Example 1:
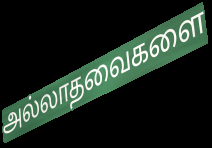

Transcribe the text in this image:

அல்லாதவைகளை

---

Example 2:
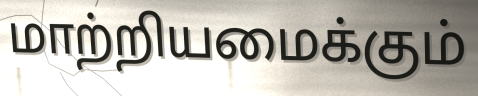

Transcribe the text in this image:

மாற்றியமைக்கும்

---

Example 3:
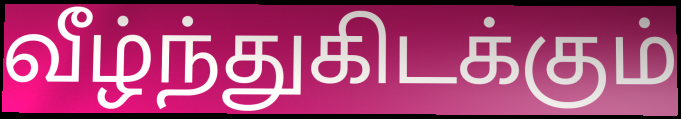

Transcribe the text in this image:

வீழ்ந்துகிடக்கும்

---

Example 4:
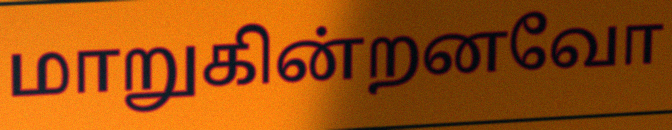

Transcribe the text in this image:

மாறுகின்றனவோ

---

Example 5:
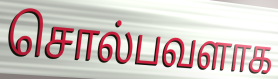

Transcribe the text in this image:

சொல்பவளாக